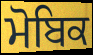
ਮੋਬਿਕ